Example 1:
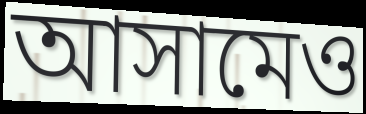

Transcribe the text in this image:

আসামেও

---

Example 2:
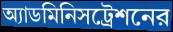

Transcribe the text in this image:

অ্যাডমিনিসট্রেশনের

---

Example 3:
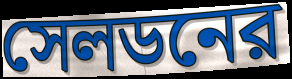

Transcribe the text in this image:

সেলডনের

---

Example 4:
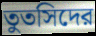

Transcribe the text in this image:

তুতসিদের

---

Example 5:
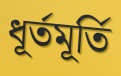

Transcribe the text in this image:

ধূর্তমূর্তি